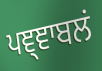
ਪਞ੍ਞਾਬਲਂ